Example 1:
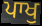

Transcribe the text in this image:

ਪਾਖੁ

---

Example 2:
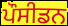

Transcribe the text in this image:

ਪੌਸੀਡਨ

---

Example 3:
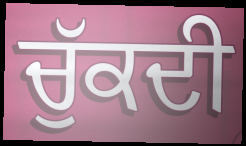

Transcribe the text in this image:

ਚੁੱਕਦੀ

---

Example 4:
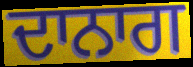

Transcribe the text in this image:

ਦਾਨਾਗ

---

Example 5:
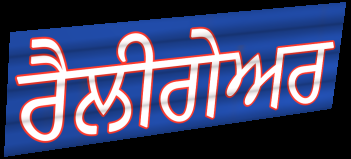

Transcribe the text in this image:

ਰੈਲੀਗੇਅਰ